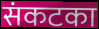
संकटका